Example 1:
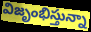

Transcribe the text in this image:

విజృంభిస్తున్నా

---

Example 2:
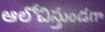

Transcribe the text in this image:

ఆలోచిస్తుండగా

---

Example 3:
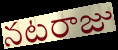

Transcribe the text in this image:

నటరాజు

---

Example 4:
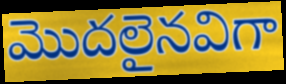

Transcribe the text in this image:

మొదలైనవిగా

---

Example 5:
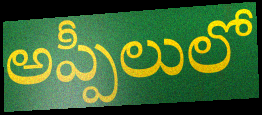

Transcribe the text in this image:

అప్పీలులో